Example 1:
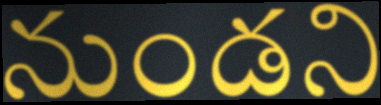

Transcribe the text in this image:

నుండని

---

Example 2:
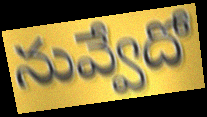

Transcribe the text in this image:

నువ్వేదో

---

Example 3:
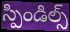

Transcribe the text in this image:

స్పిండిల్స్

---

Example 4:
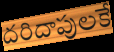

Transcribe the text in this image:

దరిదాపులకే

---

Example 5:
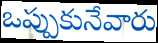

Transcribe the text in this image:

ఒప్పుకునేవారు